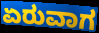
ಏರುವಾಗ